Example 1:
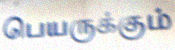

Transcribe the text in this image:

பெயருக்கும்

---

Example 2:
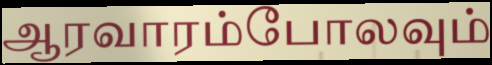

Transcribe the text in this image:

ஆரவாரம்போலவும்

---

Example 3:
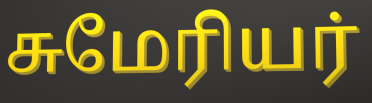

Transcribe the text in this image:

சுமேரியர்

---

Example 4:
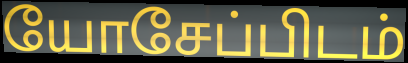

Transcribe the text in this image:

யோசேப்பிடம்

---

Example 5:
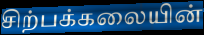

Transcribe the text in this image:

சிற்பக்கலையின்